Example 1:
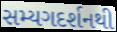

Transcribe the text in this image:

સમ્યગદર્શનથી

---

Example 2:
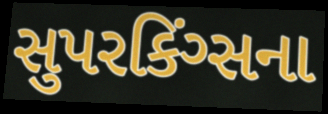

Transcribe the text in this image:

સુપરકિંગ્સના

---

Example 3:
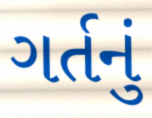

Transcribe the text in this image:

ગર્તનું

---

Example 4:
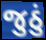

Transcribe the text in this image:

જુઠું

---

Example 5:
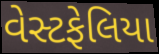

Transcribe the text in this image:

વેસ્ટફેલિયા